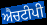
ਐਚਟੀਪੀ